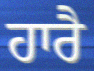
ਹਾਰੈ